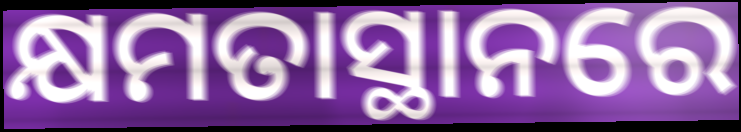
କ୍ଷମତାସ୍ଥାନରେ